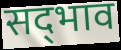
सद्भाव